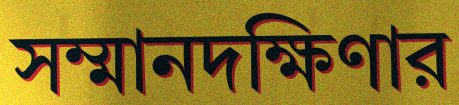
সম্মানদক্ষিণার